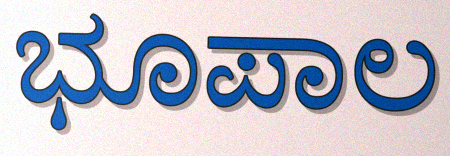
ಭೂಪಾಲ